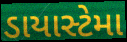
ડાયાસ્ટેમા